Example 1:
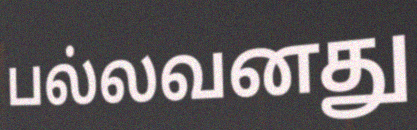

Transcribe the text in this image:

பல்லவனது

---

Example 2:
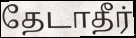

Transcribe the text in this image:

தேடாதீர்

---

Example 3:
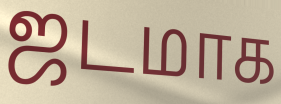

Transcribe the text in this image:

ஜடமாக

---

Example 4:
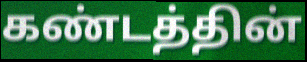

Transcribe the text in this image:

கண்டத்தின்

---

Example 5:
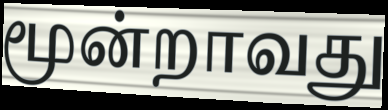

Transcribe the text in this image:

மூன்றாவது